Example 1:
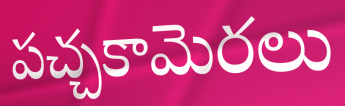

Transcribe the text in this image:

పచ్చకామెరలు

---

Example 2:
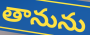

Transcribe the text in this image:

తానును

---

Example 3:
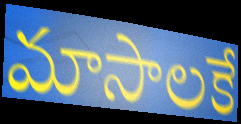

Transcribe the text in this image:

మాసాలకే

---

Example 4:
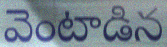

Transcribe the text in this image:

వెంటాడిన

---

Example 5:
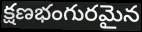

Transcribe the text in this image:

క్షణభంగురమైన